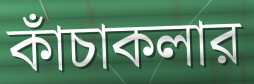
কাঁচাকলার